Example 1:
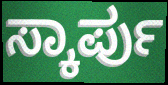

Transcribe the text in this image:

ಸ್ಕಾರ್ಪು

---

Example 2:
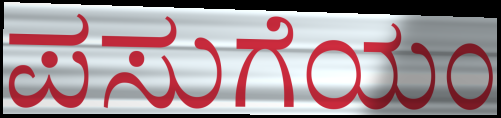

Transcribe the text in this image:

ಪಸುಗೆಯಂ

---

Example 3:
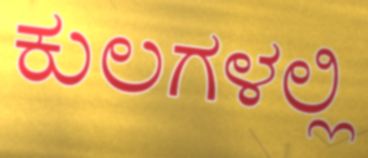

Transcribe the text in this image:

ಕುಲಗಳಲ್ಲಿ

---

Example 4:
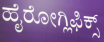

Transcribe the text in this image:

ಹೈರೋಗ್ಲಿಫಿಕ್ಸ್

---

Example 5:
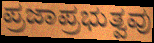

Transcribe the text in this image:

ಪ್ರಜಾಪ್ರಭುತ್ವವು